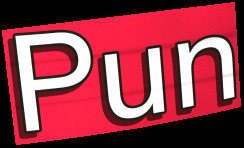
Pun